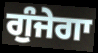
ਗੁੰਜੇਗਾ